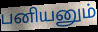
பனியனும்